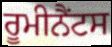
ਰੂਮੀਨੈਂਟਸ